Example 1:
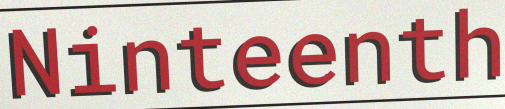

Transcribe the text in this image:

Ninteenth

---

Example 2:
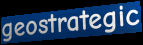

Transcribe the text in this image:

geostrategic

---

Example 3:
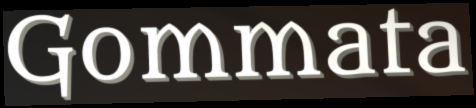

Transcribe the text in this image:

Gommata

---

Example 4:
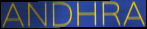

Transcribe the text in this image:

ANDHRA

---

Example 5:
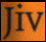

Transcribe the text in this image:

Jiv